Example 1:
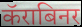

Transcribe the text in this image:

कॅराबिनर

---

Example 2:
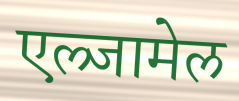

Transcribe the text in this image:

एल्जामेल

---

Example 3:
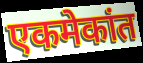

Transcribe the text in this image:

एकमेकांत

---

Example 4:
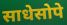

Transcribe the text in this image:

साधेसोपे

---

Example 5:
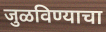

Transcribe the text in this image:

जुळविण्याचा